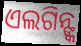
ଏଲଗିନ୍ଙ୍କ